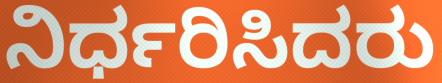
ನಿರ್ಧರಿಸಿದರು